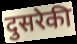
दुसरेकी